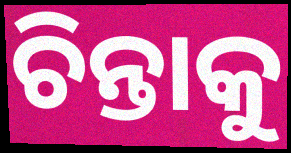
ଚିନ୍ତାକୁ